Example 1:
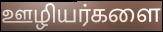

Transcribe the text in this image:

ஊழியர்களை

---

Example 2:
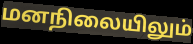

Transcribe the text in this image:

மனநிலையிலும்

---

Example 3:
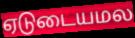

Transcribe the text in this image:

ஏடுடையமல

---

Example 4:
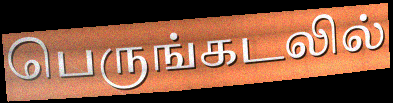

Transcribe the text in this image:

பெருங்கடலில்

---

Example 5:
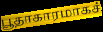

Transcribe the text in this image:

பூதாகாரமாகச்